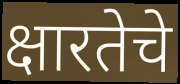
क्षारतेचे